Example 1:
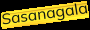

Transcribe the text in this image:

Sasanagala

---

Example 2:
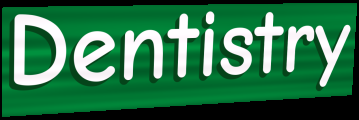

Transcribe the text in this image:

Dentistry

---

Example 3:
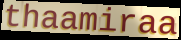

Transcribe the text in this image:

thaamiraa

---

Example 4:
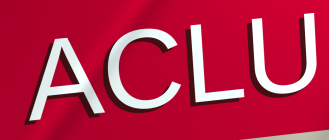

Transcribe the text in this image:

ACLU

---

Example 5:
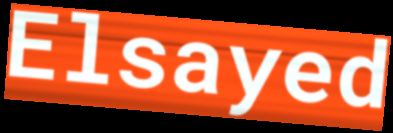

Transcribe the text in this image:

Elsayed